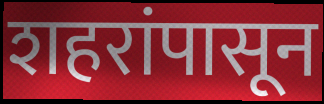
शहरांपासून